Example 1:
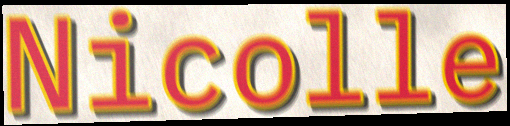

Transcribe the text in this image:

Nicolle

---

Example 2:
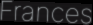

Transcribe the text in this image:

Frances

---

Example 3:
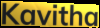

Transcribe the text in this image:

Kavitha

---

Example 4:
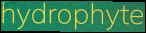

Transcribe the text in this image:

hydrophyte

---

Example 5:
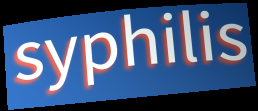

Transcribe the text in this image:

syphilis